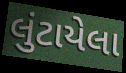
લુંટાયેલા